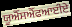
ਯੂਐੱਸਐੱਫਆਈਏ